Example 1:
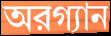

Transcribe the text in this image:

অরগ্যান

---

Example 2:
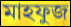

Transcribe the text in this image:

মাহফুজ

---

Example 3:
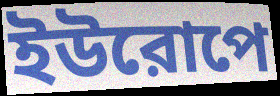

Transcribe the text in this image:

ইউরোপে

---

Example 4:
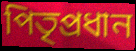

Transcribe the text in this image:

পিতৃপ্রধান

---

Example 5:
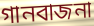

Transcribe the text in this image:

গানবাজনা